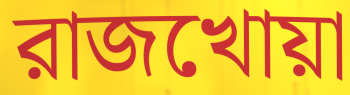
রাজখোয়া